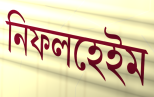
নিফলহেইম